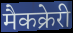
मैकक्रेरी